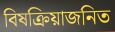
বিষক্রিয়াজনিত